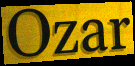
Ozar